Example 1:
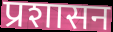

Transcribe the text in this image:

प्रशासन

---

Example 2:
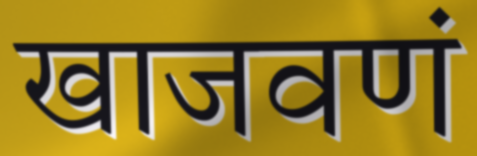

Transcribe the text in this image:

खाजवणं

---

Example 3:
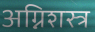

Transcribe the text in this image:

अग्निशस्त्र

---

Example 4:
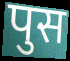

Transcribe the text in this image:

पुस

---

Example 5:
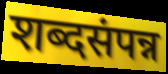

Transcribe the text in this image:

शब्दसंपन्न